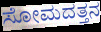
ಸೋಮದತ್ತನ